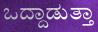
ಒದ್ದಾಡುತ್ತಾ